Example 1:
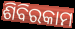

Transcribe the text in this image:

ଶିବିରକାମ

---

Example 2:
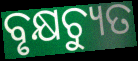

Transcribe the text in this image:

ବୃକ୍ଷଚ୍ଯୁତ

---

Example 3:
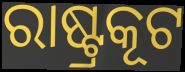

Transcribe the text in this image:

ରାଷ୍ଟ୍ରକୂଟ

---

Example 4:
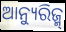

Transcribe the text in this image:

ଆନ୍ୟୁରିଜ୍ମ୍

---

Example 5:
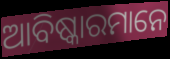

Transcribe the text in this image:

ଆବିଷ୍କାରମାନେ